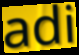
adi